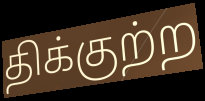
திக்குற்ற